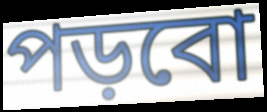
পড়বো